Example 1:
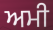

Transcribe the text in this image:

ਅਮੀ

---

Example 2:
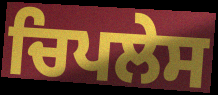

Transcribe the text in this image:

ਚਿਪਲੇਸ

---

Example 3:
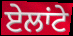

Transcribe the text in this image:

ਏਲਾਂਟੇ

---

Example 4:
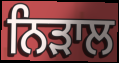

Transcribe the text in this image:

ਨਿੜਾਲ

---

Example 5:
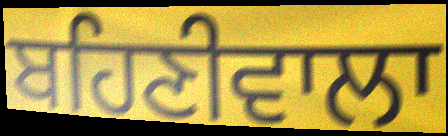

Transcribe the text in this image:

ਬਹਿਣੀਵਾਲਾ